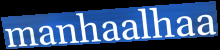
manhaalhaa